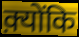
क़्योंकि